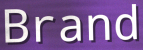
Brand